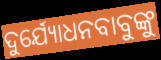
ଦୁର୍ଯ୍ୟୋଧନବାବୁଙ୍କୁ